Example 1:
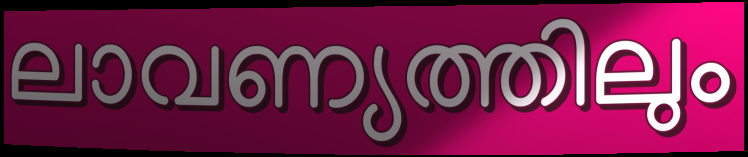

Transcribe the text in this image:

ലാവണ്യത്തിലും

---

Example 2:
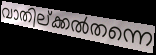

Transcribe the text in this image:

വാതില്ക്കൽതന്നെ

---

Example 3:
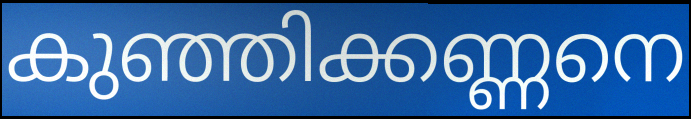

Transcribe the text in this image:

കുഞ്ഞിക്കണ്ണനെ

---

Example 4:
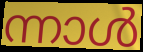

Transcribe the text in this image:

ന്നാൾ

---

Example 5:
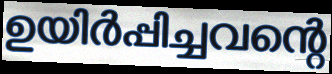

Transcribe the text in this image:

ഉയിർപ്പിച്ചവന്റെ